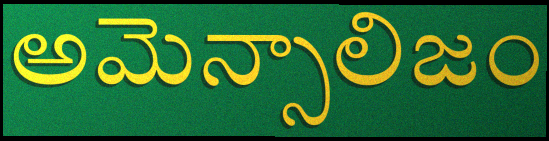
అమెన్సాలిజం